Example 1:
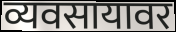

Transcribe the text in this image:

व्यवसायावर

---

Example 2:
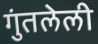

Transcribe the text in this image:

गुंतलेली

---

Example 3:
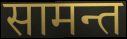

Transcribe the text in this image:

सामन्त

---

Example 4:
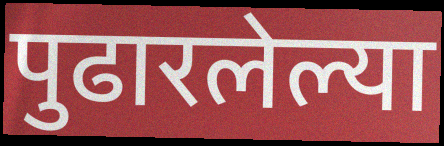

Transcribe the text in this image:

पुढारलेल्या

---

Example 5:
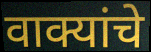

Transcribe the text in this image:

वाक्यांचे